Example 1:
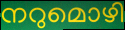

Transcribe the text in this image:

നറുമൊഴി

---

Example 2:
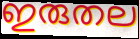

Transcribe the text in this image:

ഇരുതല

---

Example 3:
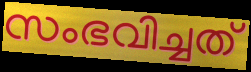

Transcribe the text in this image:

സംഭവിച്ചത്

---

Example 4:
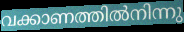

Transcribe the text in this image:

വക്കാണത്തിൽനിന്നു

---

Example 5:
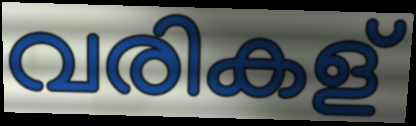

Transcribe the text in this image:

വരികള്